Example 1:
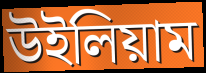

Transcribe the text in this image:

উইলিয়াম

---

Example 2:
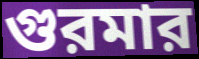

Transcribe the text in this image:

গুরমার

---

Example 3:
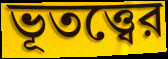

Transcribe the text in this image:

ভূতত্ত্বের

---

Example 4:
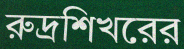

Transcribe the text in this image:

রুদ্রশিখরের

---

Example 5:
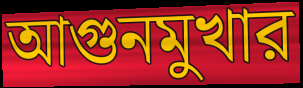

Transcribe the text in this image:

আগুনমুখার